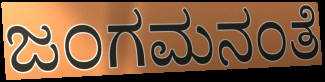
ಜಂಗಮನಂತೆ